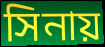
সিনায়